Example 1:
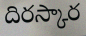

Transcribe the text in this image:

దిరస్కార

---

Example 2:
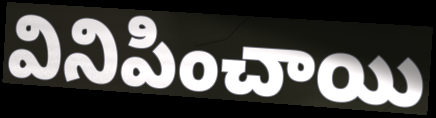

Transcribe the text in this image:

వినిపించాయి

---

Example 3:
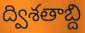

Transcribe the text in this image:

ద్విశతాబ్ది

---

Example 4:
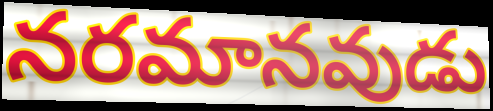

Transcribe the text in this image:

నరమానవుడు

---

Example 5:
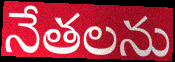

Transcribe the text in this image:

నేతలను